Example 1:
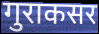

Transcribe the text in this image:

गुराकसर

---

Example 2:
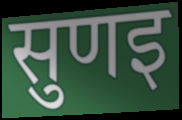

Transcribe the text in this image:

सुणइ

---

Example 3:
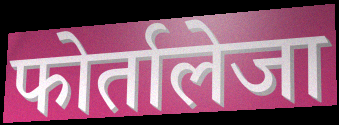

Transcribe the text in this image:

फोर्तालेजा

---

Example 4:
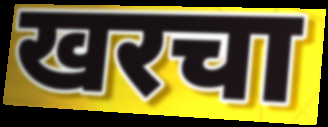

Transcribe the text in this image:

खरचा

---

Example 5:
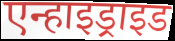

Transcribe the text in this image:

एन्हाइड्राइड